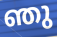
ഞു